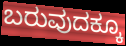
ಬರುವುದಕ್ಕೂ